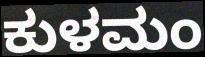
ಕುಳಮಂ